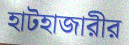
হাটহাজারীর